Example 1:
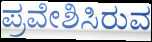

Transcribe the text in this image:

ಪ್ರವೇಶಿಸಿರುವ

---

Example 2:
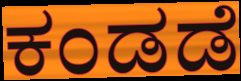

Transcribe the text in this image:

ಕಂಡಡೆ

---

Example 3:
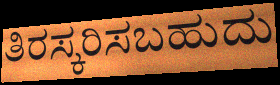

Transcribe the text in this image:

ತಿರಸ್ಕರಿಸಬಹುದು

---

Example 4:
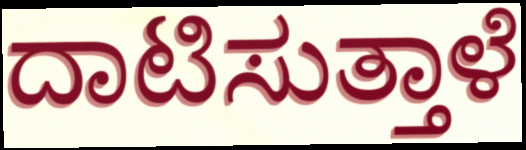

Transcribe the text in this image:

ದಾಟಿಸುತ್ತಾಳೆ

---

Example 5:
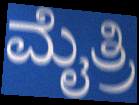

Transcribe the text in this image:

ಮೈತ್ರಿ